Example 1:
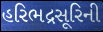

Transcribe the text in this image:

હરિભદ્રસૂરિની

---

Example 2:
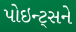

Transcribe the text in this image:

પોઇન્ટ્સને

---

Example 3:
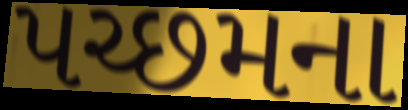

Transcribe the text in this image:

પચ્છમના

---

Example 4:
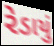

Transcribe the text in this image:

રેડાયું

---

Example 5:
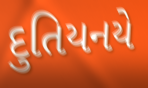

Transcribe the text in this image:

દુતિયનયે